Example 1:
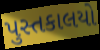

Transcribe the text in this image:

પુસ્તકાલયો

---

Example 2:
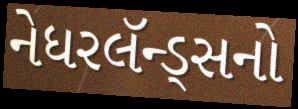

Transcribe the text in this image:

નેધરલૅન્ડ્સનો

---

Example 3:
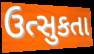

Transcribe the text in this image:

ઉત્સુકતા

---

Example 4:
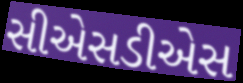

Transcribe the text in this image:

સીએસડીએસ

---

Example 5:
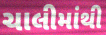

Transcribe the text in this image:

ચાલીમાંથી